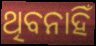
ଥିବନାହିଁ